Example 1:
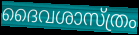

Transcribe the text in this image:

ദൈവശാസ്ത്രം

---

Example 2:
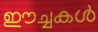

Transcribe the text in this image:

ഈച്ചകൾ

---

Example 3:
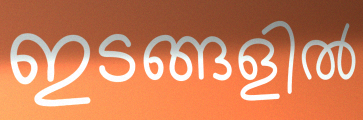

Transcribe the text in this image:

ഇടങ്ങളിൽ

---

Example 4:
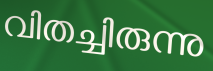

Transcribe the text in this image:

വിതച്ചിരുന്നു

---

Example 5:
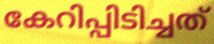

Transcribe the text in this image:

കേറിപ്പിടിച്ചത്